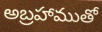
అబ్రహాముతో